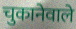
चुकानेवाले